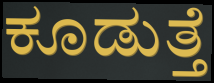
ಕೂಡುತ್ತೆ